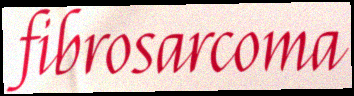
fibrosarcoma